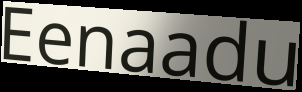
Eenaadu